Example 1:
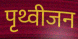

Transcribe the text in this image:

पृथ्वीजन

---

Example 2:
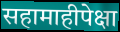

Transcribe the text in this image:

सहामाहीपेक्षा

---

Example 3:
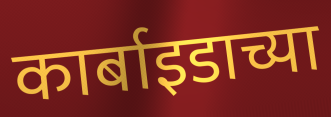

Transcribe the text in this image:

कार्बाइडाच्या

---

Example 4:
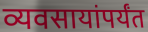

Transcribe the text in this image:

व्यवसायांपर्यंत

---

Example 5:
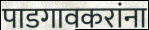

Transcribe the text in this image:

पाडगावकरांना